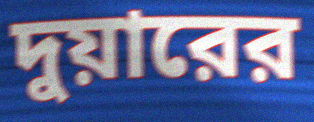
দুয়ারের